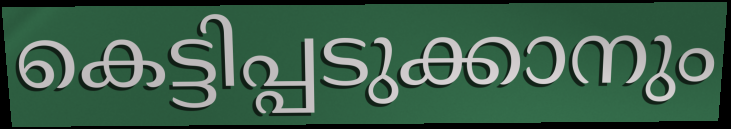
കെട്ടിപ്പടുക്കാനും